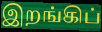
இறங்கிப்